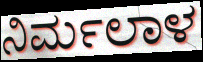
ನಿರ್ಮಲಾಳ